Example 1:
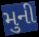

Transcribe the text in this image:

મુની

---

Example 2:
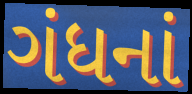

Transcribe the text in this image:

ગંધનાં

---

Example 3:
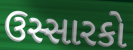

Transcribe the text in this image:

ઉસ્સારકો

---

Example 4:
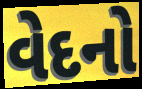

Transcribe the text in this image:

વેદનો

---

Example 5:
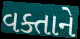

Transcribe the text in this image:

વક્તાને